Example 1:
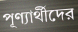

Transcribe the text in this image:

পূণ্যার্থীদের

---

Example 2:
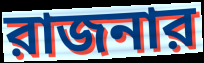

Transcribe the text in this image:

রাজনার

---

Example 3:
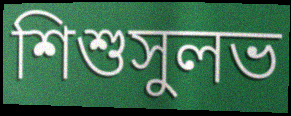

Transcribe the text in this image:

শিশুসুলভ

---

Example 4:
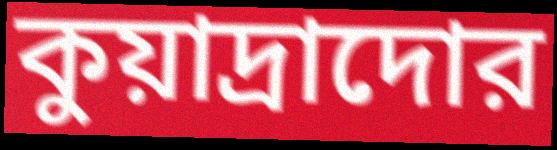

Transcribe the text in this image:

কুয়াদ্রাদোর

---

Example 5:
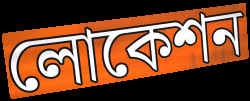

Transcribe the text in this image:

লোকেশন